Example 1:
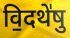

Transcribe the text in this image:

वि॒दथे॑षु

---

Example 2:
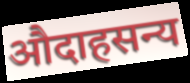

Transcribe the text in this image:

औदाहसन्य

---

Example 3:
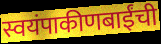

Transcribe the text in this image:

स्वयंपाकीणबाईंची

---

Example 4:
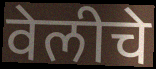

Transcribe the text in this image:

वेलीचे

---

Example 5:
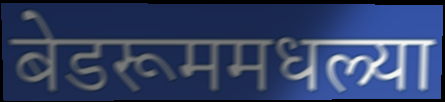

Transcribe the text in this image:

बेडरूममधल्या